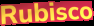
Rubisco